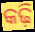
କଢ଼ି